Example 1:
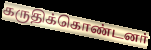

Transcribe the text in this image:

கருதிக்கொண்டனர்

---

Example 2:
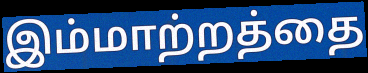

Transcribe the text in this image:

இம்மாற்றத்தை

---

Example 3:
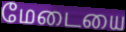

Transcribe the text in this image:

மேடையை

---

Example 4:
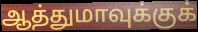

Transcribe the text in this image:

ஆத்துமாவுக்குக்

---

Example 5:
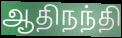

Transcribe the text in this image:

ஆதிநந்தி